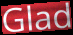
Glad